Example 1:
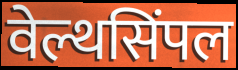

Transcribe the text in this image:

वेल्थसिंपल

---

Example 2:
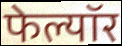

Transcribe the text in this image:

फेल्यॉर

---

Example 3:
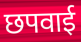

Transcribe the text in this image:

छपवाई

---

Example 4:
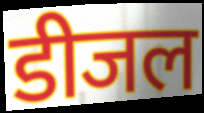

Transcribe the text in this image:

डीजल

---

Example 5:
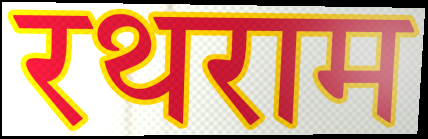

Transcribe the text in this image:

रथराम